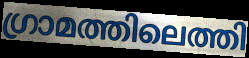
ഗ്രാമത്തിലെത്തി